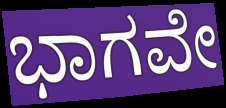
ಭಾಗವೇ